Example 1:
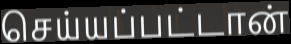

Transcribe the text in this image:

செய்யப்பட்டான்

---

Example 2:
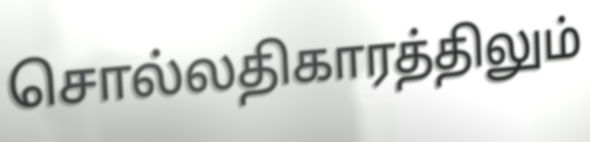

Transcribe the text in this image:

சொல்லதிகாரத்திலும்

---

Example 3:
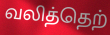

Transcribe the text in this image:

வலித்தெற்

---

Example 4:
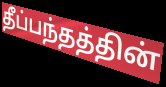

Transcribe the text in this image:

தீப்பந்தத்தின்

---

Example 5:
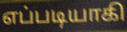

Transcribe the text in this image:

எப்படியாகி